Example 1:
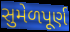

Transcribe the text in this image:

સુમેળપૂર્ણ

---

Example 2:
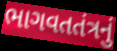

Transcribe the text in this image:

ભાગવતતંત્રનું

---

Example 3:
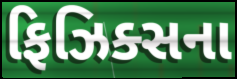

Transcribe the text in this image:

ફિઝિક્સના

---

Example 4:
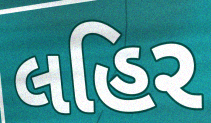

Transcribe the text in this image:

લહિર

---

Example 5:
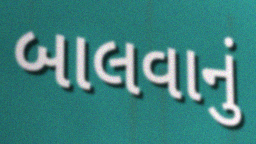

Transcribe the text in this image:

બાલવાનું